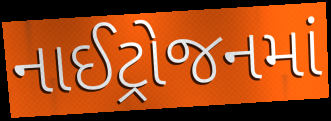
નાઈટ્રોજનમાં